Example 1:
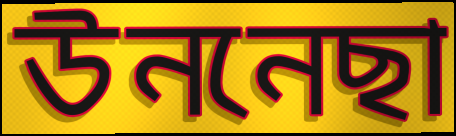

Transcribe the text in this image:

উননেছা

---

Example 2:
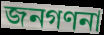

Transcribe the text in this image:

জনগণনা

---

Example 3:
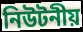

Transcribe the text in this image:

নিউটনীয়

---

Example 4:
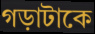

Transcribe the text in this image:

গড়াটাকে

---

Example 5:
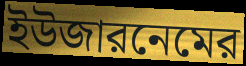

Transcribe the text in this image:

ইউজারনেমের